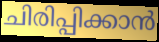
ചിരിപ്പിക്കാൻ